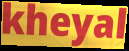
kheyal